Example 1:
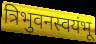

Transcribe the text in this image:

त्रिभुवनस्वयंभू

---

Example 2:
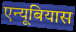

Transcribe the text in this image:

एन्यूबियास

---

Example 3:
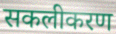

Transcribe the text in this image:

सकलीकरण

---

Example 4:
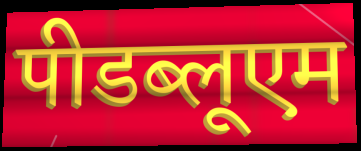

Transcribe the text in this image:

पीडब्लूएम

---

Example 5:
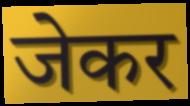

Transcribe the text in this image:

जेकर